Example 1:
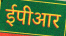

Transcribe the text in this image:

ईपीआर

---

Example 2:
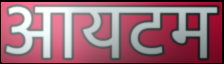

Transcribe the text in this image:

आयटम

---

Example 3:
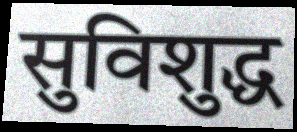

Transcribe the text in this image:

सुविशुद्ध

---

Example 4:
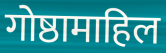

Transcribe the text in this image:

गोष्ठामाहिल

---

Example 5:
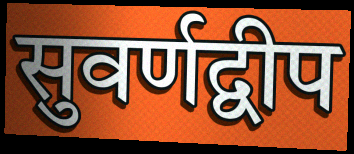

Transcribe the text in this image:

सुवर्णद्वीप